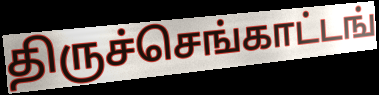
திருச்செங்காட்டங்